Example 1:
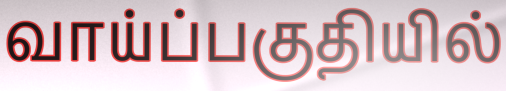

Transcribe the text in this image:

வாய்ப்பகுதியில்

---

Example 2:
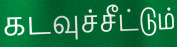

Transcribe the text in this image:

கடவுச்சீட்டும்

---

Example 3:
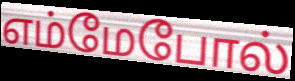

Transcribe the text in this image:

எம்மேபோல்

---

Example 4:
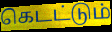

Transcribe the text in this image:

கெடட்டும்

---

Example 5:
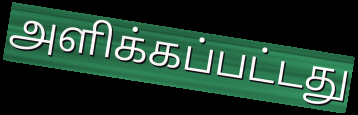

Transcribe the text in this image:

அளிக்கப்பட்டது